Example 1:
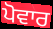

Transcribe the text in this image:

ਪੋਵਾਰ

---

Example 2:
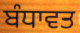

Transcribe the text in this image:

ਬੰਧਾਵਤ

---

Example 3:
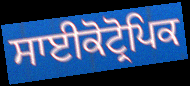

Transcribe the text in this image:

ਸਾਈਕੋਟ੍ਰੋਪਿਕ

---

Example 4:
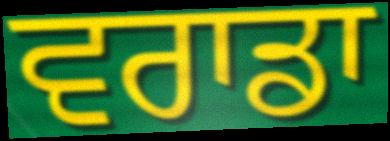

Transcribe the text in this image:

ਵਰਾਡਾ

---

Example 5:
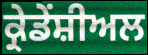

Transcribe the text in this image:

ਕ੍ਰੇਡੇਂਸ਼ੀਅਲ